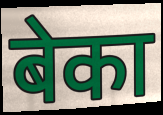
बेका